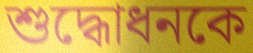
শুদ্ধোধনকে